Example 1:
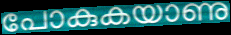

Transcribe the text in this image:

പോകുകയാണു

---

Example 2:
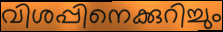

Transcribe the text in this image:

വിശപ്പിനെക്കുറിച്ചും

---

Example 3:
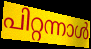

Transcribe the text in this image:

പിറ്റന്നാൾ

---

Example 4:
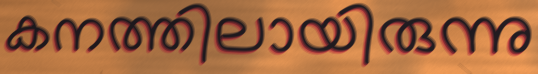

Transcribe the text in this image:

കനത്തിലായിരുന്നു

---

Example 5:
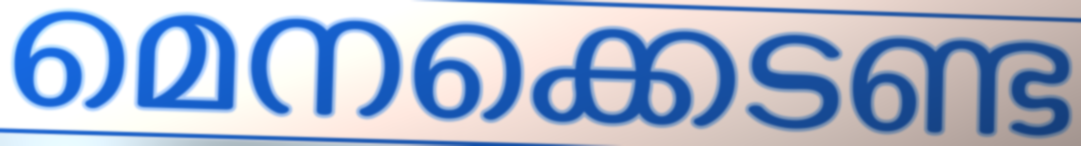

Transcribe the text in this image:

മെനക്കെടണ്ട